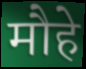
मौहे